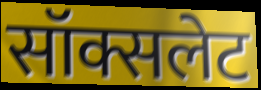
सॉक्सलेट